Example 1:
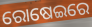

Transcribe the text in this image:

ରୋଷେଇରେ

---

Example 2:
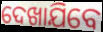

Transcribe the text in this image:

ଦେଖାଯିବେ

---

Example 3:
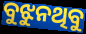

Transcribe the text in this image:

ବୁଝୁନଥିବୁ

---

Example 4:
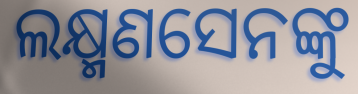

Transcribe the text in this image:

ଲକ୍ଷ୍ମଣସେନଙ୍କୁ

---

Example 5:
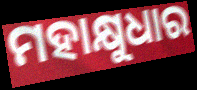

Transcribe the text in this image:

ମହାକ୍ଷୁଧାର